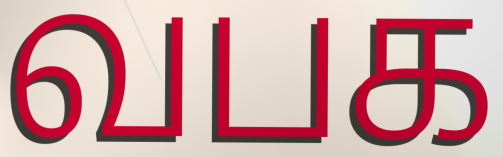
வபக